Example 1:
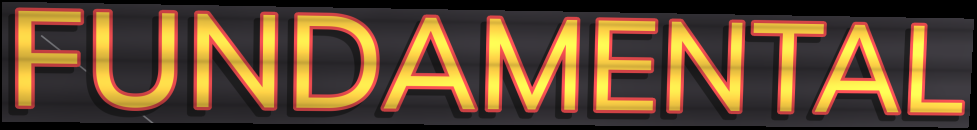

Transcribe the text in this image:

FUNDAMENTAL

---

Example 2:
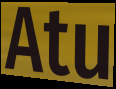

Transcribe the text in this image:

Atu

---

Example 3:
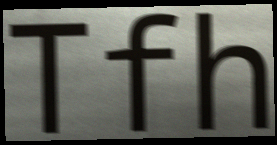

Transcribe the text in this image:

Tfh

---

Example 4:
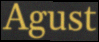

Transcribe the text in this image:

Agust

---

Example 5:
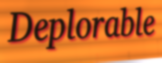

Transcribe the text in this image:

Deplorable